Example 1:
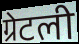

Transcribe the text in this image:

ग्रेटली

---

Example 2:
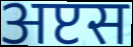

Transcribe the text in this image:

अप्टस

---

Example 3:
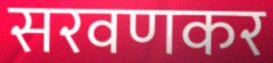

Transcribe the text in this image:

सरवणकर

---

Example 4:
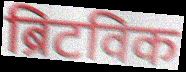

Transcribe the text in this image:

ब्रिटविक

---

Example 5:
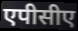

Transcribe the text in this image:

एपीसीए